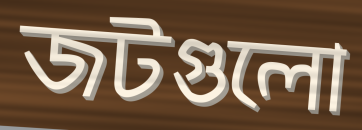
জটগুলো